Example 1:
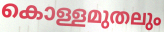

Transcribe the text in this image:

കൊള്ളമുതലും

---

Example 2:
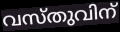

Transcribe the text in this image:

വസ്തുവിന്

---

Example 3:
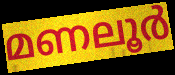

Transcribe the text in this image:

മണലൂർ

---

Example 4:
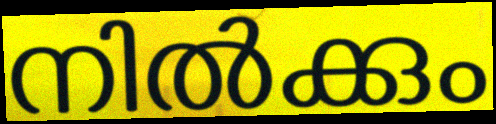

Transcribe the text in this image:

നിൽക്കും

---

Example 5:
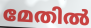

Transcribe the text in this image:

മേതിൽ